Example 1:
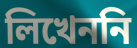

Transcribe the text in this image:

লিখেননি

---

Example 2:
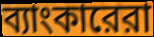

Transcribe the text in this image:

ব্যাংকারেরা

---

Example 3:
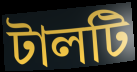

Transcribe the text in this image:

টালটি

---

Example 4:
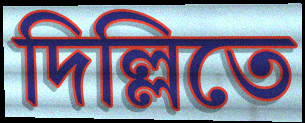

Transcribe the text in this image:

দিল্লিতে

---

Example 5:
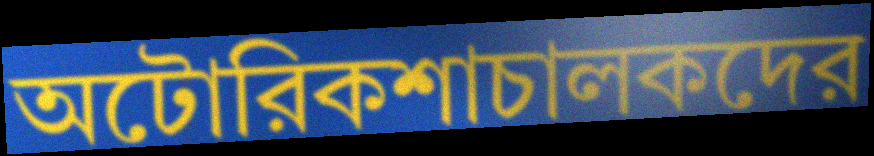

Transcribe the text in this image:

অটোরিকশাচালকদের